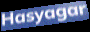
Hasyagar